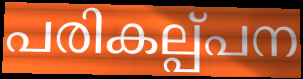
പരികല്പ്പന